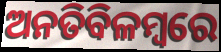
ଅନତିବିଳମ୍ବରେ